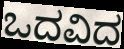
ಒದವಿದ